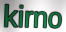
kirno